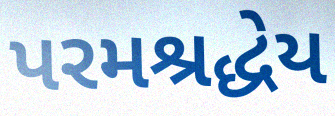
પરમશ્રદ્ધેય